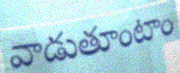
వాడుతూంటాం